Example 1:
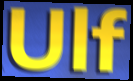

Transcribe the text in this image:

Ulf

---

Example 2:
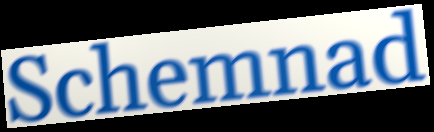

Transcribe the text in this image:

Schemnad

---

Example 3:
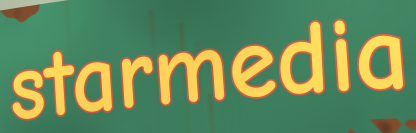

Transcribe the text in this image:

starmedia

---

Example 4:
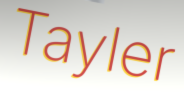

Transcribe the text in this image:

Tayler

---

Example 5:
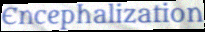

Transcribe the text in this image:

Encephalization